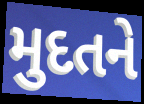
મુદતને